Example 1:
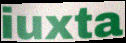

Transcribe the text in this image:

iuxta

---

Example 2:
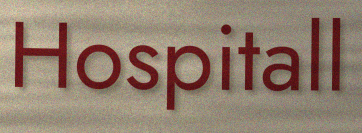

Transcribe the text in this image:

Hospitall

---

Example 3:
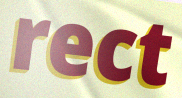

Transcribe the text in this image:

rect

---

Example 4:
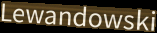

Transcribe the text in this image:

Lewandowski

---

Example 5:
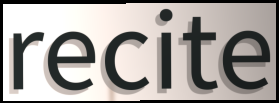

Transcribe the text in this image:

recite